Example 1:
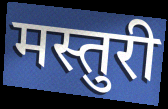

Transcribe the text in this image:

मस्तुरी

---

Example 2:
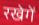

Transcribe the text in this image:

रखेगें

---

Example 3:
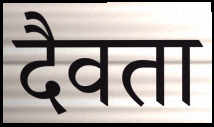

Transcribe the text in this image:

दैवता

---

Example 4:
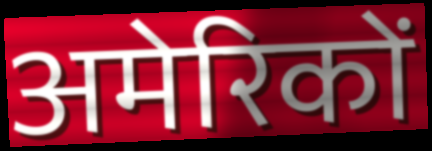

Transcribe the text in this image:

अमेरिकों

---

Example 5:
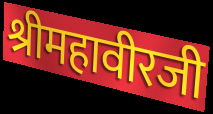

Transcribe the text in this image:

श्रीमहावीरजी